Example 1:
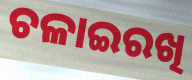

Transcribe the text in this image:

ଚଳାଇରଖି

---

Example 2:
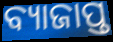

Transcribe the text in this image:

ବ୍ୟାଜାପ୍ତ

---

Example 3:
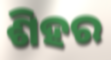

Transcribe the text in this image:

ଶିହର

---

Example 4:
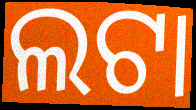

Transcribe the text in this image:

ଲଟା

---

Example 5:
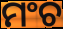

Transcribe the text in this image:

ମଂଚ